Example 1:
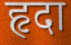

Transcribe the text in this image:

हृदा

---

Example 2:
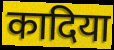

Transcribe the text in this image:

कादिया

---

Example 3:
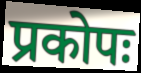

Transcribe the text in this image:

प्रकोपः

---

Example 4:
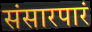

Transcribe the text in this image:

संसारपारं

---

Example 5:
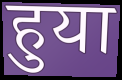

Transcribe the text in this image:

हुया